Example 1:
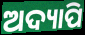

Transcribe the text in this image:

ଅଦ୍ୟାପି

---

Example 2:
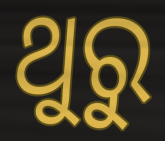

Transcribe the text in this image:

ଥୁରୁ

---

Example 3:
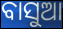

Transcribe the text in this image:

ବାସୁଆ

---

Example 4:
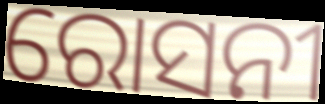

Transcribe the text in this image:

ରୋସନୀ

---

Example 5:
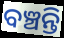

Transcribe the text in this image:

ବଞ୍ଚନ୍ତି